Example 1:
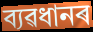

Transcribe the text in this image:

ব্যৱধানৰ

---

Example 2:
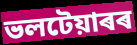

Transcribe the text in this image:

ভলটেয়াৰৰ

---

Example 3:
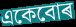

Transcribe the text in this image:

একেবোৰ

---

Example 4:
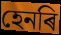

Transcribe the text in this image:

হেনৰি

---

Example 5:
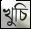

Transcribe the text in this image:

খুচি